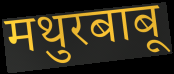
मथुरबाबू